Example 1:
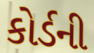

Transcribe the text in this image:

કોર્ડની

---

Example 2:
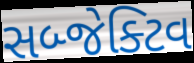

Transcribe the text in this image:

સબ્જેક્ટિવ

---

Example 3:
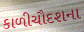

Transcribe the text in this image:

કાળીચૌદશના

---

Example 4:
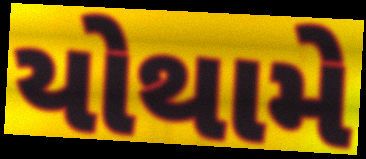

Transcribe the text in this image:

યોથામે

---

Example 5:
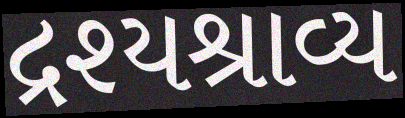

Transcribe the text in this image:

દ્રશ્યશ્રાવ્ય